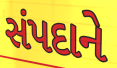
સંપદાને